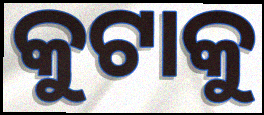
କୁଟାକୁ